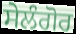
ਸੇਲੰਗੋਰ